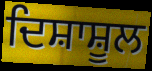
ਦਿਸ਼ਾਸ਼ੂਲ